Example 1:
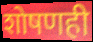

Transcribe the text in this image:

शोषणही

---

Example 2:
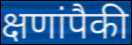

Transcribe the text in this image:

क्षणांपैकी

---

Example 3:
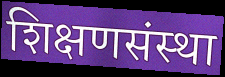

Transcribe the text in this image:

शिक्षणसंस्था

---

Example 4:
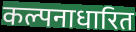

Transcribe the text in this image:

कल्पनाधारित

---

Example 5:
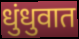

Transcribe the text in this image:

धुंधुवात